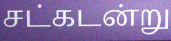
சட்கடன்று